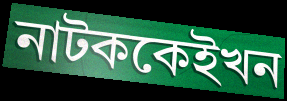
নাটককেইখন